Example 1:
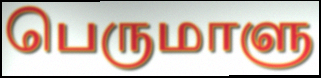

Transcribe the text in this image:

பெருமாளு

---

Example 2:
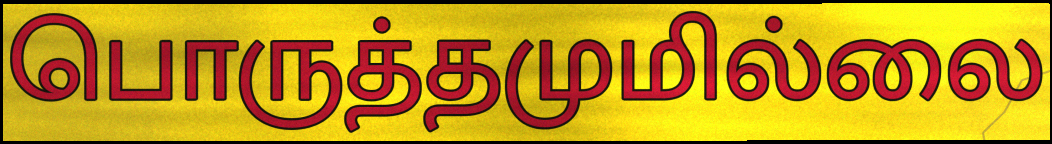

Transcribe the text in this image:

பொருத்தமுமில்லை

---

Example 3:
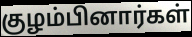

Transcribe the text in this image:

குழம்பினார்கள்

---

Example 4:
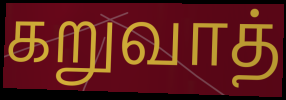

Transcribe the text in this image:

கறுவாத்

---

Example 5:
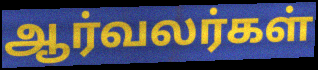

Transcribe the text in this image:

ஆர்வலர்கள்